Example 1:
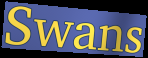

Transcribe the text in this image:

Swans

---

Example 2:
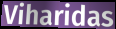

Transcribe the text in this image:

Viharidas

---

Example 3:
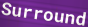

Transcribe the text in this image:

Surround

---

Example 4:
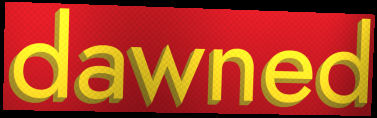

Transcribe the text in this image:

dawned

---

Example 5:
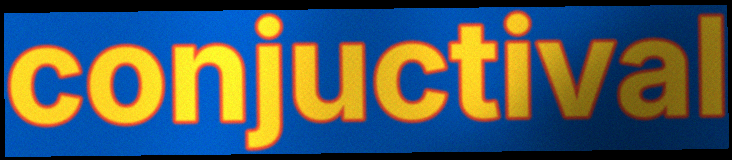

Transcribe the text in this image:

conjuctival